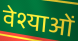
वेश्याओं